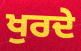
ਖੁਰਦੇ